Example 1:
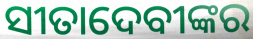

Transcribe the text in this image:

ସୀତାଦେବୀଙ୍କର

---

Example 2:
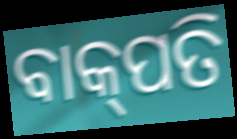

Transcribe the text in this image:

ବାକ୍‌ପତି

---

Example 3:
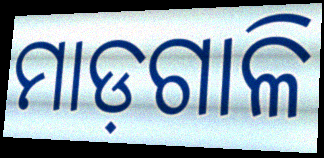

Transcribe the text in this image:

ମାଡ଼ଗାଳି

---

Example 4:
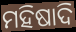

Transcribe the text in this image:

ମହିଷାଦି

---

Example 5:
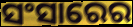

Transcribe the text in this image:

ସଂସାରେର